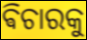
ଵିଚାରକୁ